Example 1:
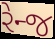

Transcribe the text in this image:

રેન્જ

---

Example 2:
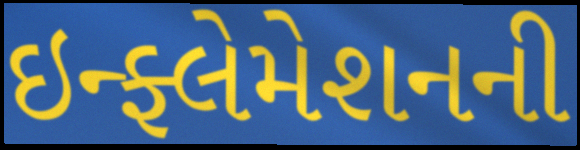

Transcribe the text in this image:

ઇન્ફ્લેમેશનની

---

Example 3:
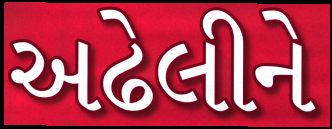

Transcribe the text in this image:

અઢેલીને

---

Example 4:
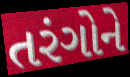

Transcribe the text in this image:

તરંગોને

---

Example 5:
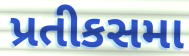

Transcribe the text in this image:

પ્રતીકસમા